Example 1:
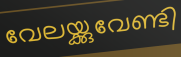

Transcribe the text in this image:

വേലയ്ക്കുവേണ്ടി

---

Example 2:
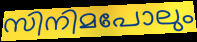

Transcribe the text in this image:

സിനിമപോലും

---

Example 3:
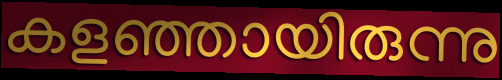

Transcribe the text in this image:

കളഞ്ഞായിരുന്നു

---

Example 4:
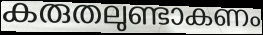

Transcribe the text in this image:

കരുതലുണ്ടാകണം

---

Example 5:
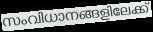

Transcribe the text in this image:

സംവിധാനങ്ങളിലേക്ക്